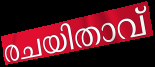
രചയിതാവ്